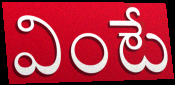
వింటే